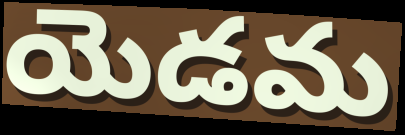
యెడమ